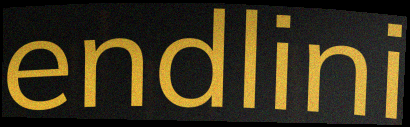
endlini